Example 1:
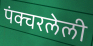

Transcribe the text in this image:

पंक्चरलेली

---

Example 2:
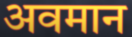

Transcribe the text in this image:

अवमान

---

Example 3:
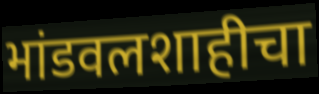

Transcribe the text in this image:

भांडवलशाहीचा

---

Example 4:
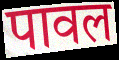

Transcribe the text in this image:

पावल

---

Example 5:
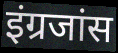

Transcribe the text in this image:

इंग्रजांस